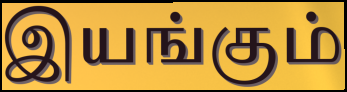
இயங்கும்